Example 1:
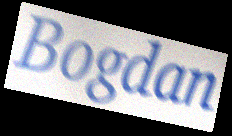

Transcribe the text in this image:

Bogdan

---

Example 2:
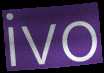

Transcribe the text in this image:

ivo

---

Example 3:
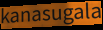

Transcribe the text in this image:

kanasugala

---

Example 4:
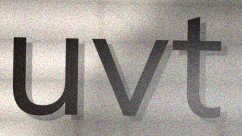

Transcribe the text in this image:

uvt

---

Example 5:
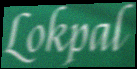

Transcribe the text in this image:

Lokpal